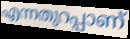
എന്നതുറപ്പാണ്